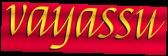
vayassu